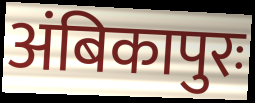
अंबिकापुरः